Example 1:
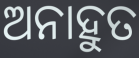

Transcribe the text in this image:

ଅନାହୁତ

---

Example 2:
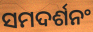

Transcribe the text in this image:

ସମଦର୍ଶନଂ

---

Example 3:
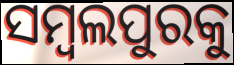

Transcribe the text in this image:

ସମ୍ୱଲପୁରକୁ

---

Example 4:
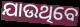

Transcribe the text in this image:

ଯାଉଥିବେ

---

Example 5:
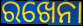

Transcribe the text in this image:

ରଖେନା